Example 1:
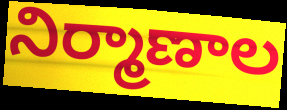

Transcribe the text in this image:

నిర్మాణాల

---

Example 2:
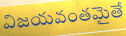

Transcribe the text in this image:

విజయవంతమైతే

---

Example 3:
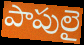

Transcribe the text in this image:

పాపులై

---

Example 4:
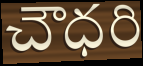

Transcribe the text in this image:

చౌధరి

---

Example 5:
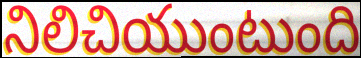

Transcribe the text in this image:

నిలిచియుంటుంది